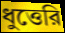
ধুত্তেরি